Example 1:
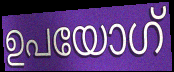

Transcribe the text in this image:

ഉപയോഗ്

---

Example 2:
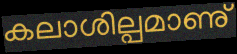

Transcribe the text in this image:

കലാശില്പമാണു്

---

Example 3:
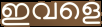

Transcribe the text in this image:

ഇവളെ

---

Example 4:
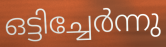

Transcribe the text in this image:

ഒട്ടിച്ചേർന്നു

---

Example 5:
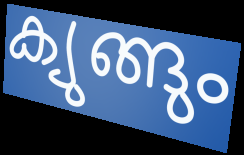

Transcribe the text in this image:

ക്യുങ്ങും